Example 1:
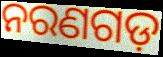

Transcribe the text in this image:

ନରଣଗଡ଼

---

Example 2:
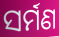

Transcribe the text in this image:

ସର୍ମଣ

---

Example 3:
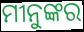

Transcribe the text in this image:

ମୀନୁଙ୍କର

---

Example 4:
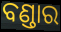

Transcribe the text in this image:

ବଣ୍ଡାର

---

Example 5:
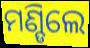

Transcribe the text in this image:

ମଣ୍ଡିଲେ